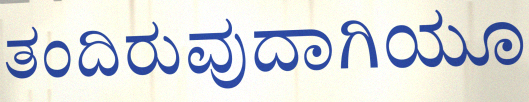
ತಂದಿರುವುದಾಗಿಯೂ